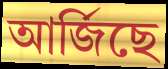
আৰ্জিছে